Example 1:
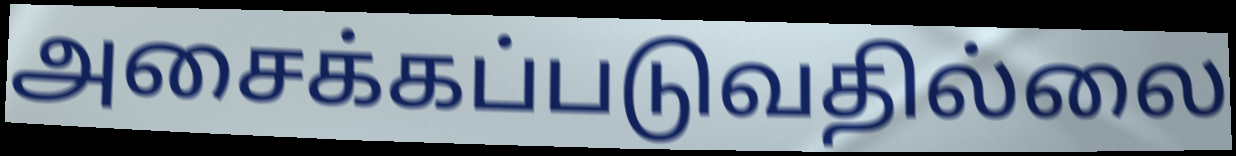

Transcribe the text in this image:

அசைக்கப்படுவதில்லை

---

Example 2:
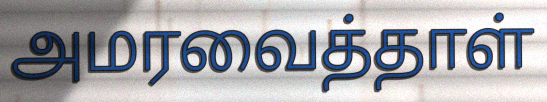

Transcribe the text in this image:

அமரவைத்தாள்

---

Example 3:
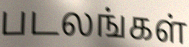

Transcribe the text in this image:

படலங்கள்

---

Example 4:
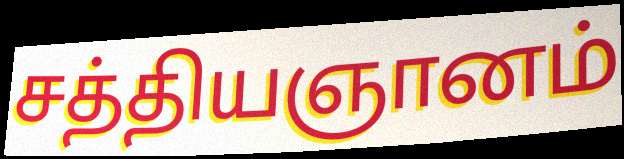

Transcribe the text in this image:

சத்தியஞானம்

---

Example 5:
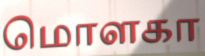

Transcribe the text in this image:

மொளகா